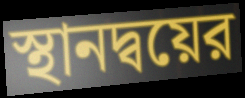
স্থানদ্বয়ের